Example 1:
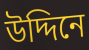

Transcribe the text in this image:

উদ্দিনে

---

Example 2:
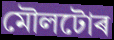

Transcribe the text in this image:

মৌলটোৰ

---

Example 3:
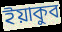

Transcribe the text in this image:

ইয়াকুব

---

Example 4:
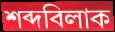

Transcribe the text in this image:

শব্দবিলাক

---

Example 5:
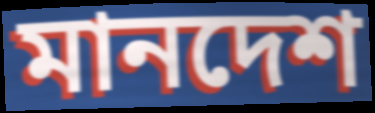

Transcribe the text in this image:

মানদেশ